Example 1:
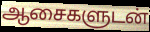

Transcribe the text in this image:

ஆசைகளுடன்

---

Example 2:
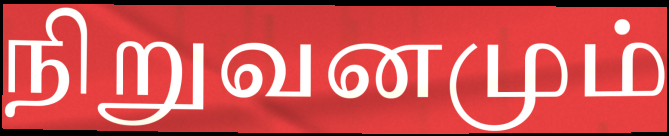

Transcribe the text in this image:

நிறுவனமும்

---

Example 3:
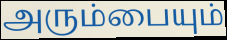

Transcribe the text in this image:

அரும்பையும்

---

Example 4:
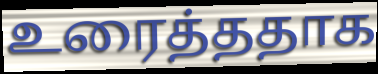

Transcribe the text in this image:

உரைத்ததாக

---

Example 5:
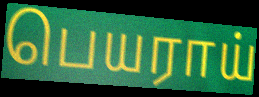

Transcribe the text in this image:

பெயராய்